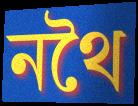
নথৈ